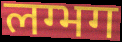
लग्भग